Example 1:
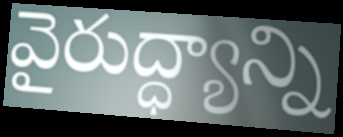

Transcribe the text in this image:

వైరుద్ధ్యాన్ని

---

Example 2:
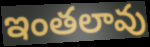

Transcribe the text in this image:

ఇంతలావు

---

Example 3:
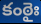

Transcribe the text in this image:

కంఠైః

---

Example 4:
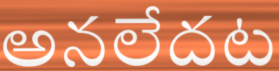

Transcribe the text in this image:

అనలేదట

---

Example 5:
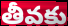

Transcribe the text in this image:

తీవకు